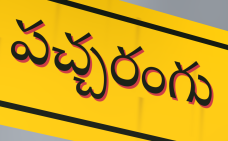
పచ్చరంగు